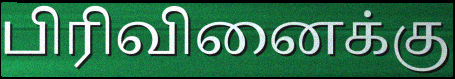
பிரிவினைக்கு